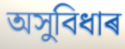
অসুবিধাৰ